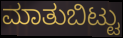
ಮಾತುಬಿಟ್ಟು